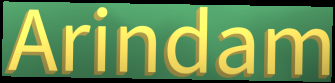
Arindam